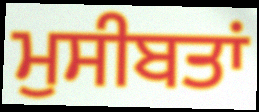
ਮੁਸੀਬਤਾਂ